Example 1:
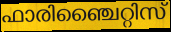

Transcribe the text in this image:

ഫാരിഞ്ചൈറ്റിസ്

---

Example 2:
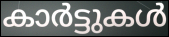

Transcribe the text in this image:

കാർട്ടുകൾ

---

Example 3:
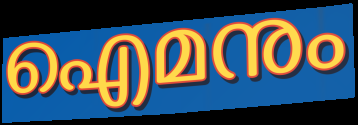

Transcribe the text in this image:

ഐമനും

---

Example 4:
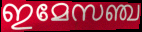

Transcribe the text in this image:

ഇമേസഞ്ച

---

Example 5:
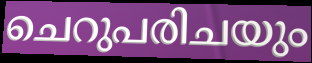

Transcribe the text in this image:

ചെറുപരിചയും